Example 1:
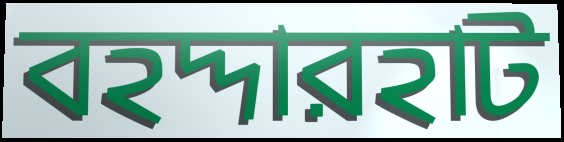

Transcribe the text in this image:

বহদ্দারহাট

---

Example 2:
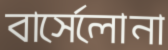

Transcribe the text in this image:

বার্সেলোনা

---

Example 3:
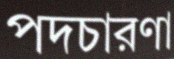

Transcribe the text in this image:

পদচারণা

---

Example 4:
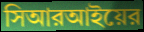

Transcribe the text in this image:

সিআরআইয়ের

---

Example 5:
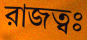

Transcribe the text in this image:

রাজত্বঃ